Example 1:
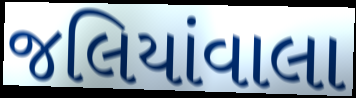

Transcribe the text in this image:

જલિયાંવાલા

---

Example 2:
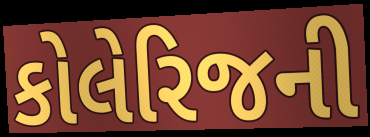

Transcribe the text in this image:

કોલેરિજની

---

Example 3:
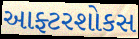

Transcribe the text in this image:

આફ્ટરશોકસ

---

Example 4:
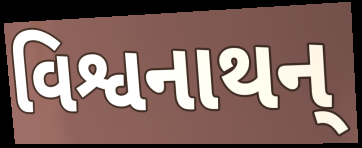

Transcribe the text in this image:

વિશ્વનાથન્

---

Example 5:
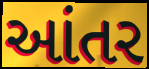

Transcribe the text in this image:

આંતર